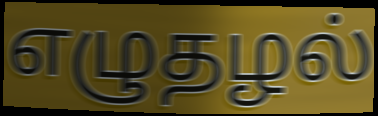
எழுதழல்